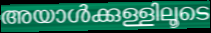
അയാൾക്കുള്ളിലൂടെ